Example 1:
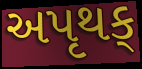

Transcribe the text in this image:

અપૃથક્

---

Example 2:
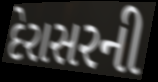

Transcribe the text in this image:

દેરાસરની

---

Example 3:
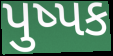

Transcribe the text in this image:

પુષ્પક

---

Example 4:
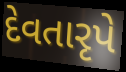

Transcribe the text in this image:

દેવતારૃપે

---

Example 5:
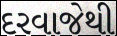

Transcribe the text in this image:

દરવાજેથી